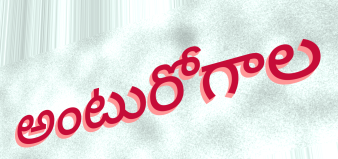
అంటురోగాల